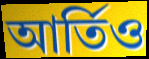
আর্তিও